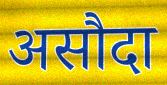
असौदा